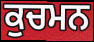
ਕੁਚਮਨ